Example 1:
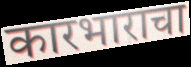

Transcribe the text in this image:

कारभाराचा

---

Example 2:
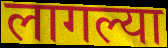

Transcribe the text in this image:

लागल्या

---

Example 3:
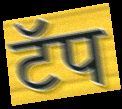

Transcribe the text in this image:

टॅप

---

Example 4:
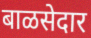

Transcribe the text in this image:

बाळसेदार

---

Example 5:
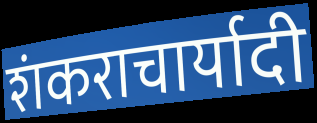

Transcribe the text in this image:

शंकराचार्यादी